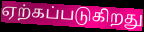
ஏற்கப்படுகிறது